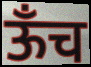
ऊँच